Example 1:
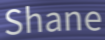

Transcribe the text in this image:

Shane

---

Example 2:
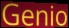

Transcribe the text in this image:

Genio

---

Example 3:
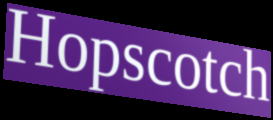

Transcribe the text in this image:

Hopscotch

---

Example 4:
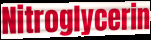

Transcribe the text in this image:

Nitroglycerin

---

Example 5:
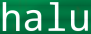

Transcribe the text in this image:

halu